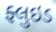
ફ્લુઇડ